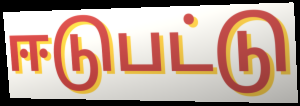
ஈடுபட்டு